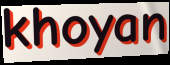
khoyan